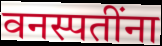
वनस्‍पतींना